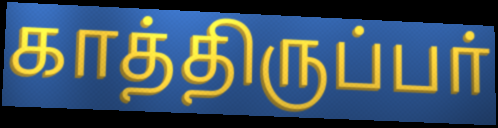
காத்திருப்பர்